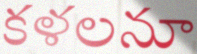
కళలనూ